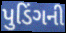
પુડિંગની